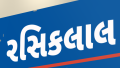
રસિકલાલ